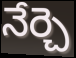
నేర్చె